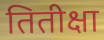
तितीक्षा